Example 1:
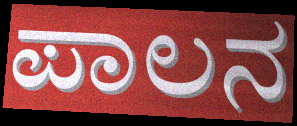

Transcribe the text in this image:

ಪಾಲನ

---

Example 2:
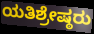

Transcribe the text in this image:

ಯತಿಶ್ರೇಷ್ಠರು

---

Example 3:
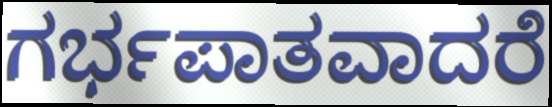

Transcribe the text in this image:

ಗರ್ಭಪಾತವಾದರೆ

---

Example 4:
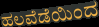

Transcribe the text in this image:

ಹಲವೆಡೆಯಿಂದ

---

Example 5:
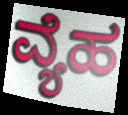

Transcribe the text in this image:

ವ್ಯೆಹ